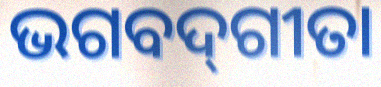
ଭଗବଦ୍‍ଗୀତା